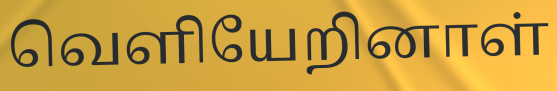
வெளியேறினாள்